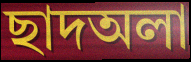
ছাদঅলা